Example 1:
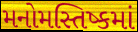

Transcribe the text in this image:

મનોમસ્તિષ્કમાં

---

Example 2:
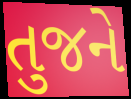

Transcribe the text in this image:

તુજને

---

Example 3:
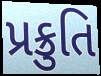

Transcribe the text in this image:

પ્રક્રુતિ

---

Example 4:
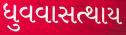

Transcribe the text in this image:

ધુવવાસત્થાય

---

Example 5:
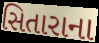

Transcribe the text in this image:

સિતારાના